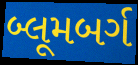
બ્લૂમબર્ગ